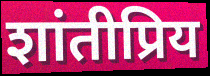
शांतीप्रिय